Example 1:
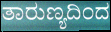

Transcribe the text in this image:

ತಾರುಣ್ಯದಿಂದ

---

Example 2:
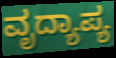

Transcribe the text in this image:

ವೃದ್ಯಾಪ್ಯ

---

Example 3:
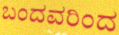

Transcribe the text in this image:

ಬಂದವರಿಂದ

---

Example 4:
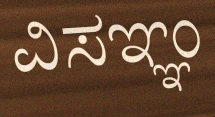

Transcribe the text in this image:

ವಿಸಞ್ಞಂ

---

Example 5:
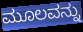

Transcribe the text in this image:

ಮೂಲವನ್ನು